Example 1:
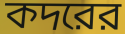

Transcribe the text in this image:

কদরের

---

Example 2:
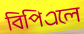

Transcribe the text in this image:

বিপিএলে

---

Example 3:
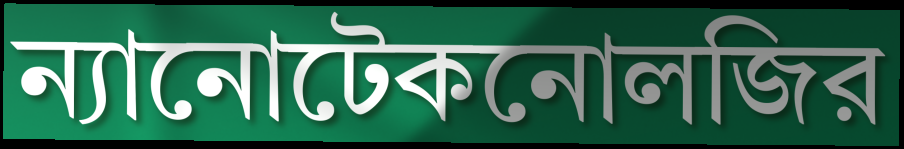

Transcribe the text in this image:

ন্যানোটেকনোলজির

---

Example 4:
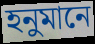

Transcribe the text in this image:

হনুমানে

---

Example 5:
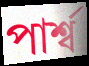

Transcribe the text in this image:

পার্শ্ব